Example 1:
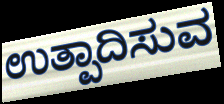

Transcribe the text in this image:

ಉತ್ಪಾದಿಸುವ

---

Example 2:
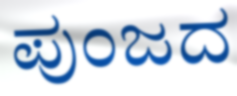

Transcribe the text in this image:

ಪುಂಜದ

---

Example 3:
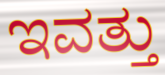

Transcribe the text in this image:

ಇವತ್ತು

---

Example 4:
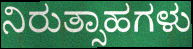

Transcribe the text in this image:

ನಿರುತ್ಸಾಹಗಳು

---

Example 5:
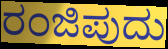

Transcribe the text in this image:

ರಂಜಿಪುದು